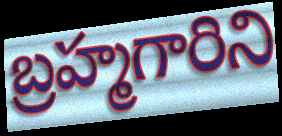
బ్రహ్మగారిని